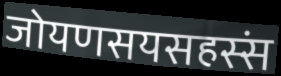
जोयणसयसहस्सं